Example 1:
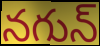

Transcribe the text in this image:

నగున్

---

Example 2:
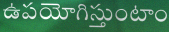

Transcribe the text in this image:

ఉపయోగిస్తుంటాం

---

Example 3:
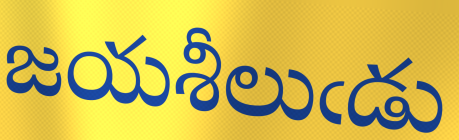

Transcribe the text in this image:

జయశీలుఁడు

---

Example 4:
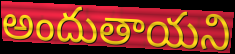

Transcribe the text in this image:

అందుతాయని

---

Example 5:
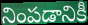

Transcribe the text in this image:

నింపడానికీ